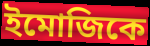
ইমোজিকে